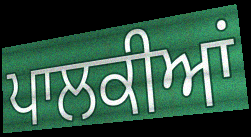
ਪਾਲਕੀਆਂ